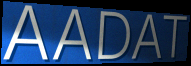
AADAT